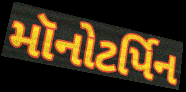
મૉનોટર્પિન